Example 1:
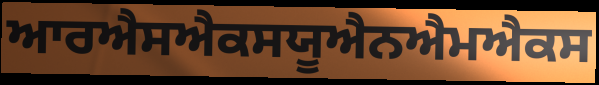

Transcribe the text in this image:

ਆਰਐਸਐਕਸਯੂਐਨਐਮਐਕਸ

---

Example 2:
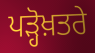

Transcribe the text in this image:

ਪੜ੍ਹੋਖ਼ਤਰੇ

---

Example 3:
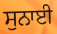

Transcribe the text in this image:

ਸੁਨਾਈ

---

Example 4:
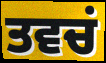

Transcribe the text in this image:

ਤਵਚਂ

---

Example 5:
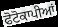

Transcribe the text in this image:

ਫੋਟੋਕਾਪੀਆਂ